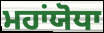
ਮਹਾਂਯੋਧਾ